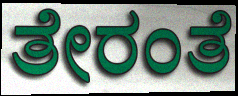
ತೇರಂತೆ